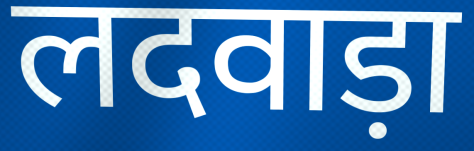
लदवाड़ा